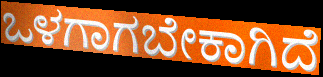
ಒಳಗಾಗಬೇಕಾಗಿದೆ